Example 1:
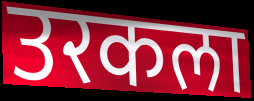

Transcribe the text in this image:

उरकला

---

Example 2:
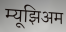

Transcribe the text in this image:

म्यूझिअम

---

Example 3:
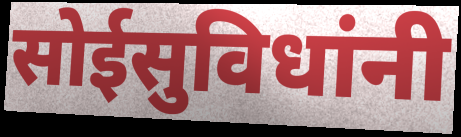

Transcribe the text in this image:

सोईसुविधांनी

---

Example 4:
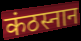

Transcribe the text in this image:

कंठस्नान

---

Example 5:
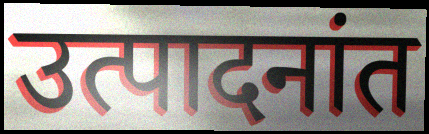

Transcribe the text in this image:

उत्पादनांत